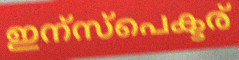
ഇന്സ്പെക്ടര്